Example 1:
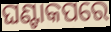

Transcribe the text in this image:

ଘଣ୍ଟାକପରେ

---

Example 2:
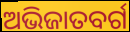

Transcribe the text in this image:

ଅଭିଜାତବର୍ଗ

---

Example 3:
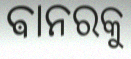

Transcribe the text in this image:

ଵାନରକୁ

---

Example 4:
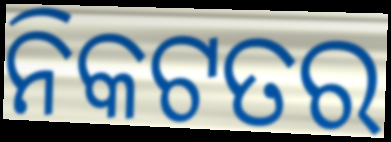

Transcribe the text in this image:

ନିକଟତର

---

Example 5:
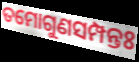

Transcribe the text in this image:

ତମୋଗୁଣସମ୍ପନ୍ତଃ